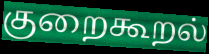
குறைகூறல்